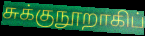
சுக்குநூறாகிப்